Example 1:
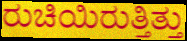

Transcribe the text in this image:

ರುಚಿಯಿರುತ್ತಿತ್ತು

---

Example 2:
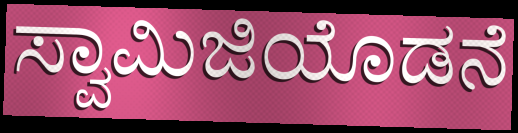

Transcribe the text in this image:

ಸ್ವಾಮಿಜಿಯೊಡನೆ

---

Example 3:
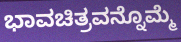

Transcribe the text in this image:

ಭಾವಚಿತ್ರವನ್ನೊಮ್ಮೆ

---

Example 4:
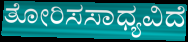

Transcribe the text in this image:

ತೋರಿಸಸಾಧ್ಯವಿದೆ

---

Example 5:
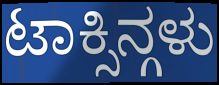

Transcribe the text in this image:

ಟಾಕ್ಸಿನ್ಗಳು